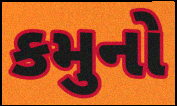
કમુનો